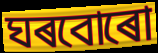
ঘৰবোৰো